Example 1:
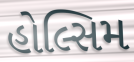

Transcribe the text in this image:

હોલ્સિમ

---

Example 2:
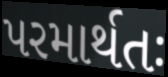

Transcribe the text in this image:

પરમાર્થતઃ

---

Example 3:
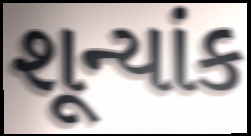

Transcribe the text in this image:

શૂન્યાંક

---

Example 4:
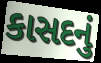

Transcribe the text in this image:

કાસદનું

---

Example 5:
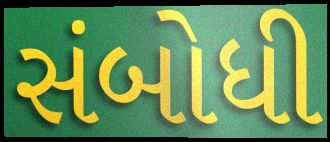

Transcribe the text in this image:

સંબોધી